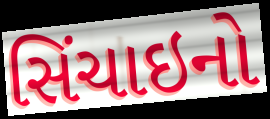
સિંચાઇનો